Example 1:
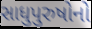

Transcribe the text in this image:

સાધુપુરુષોનો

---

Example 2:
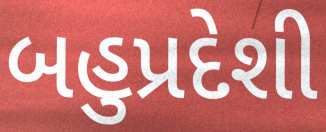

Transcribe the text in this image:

બહુપ્રદેશી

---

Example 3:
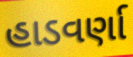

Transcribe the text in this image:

હાડવર્ણા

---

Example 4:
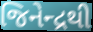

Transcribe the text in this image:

જિનેન્દ્રથી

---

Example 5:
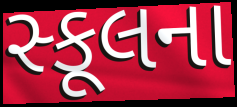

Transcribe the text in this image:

સ્કૂલના